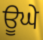
ਊਘੇ